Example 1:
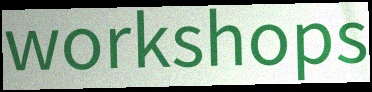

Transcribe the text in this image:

workshops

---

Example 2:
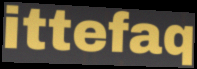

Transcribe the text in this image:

ittefaq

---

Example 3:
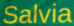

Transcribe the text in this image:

Salvia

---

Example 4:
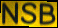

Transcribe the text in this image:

NSB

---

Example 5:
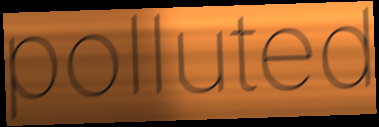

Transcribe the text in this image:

polluted